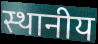
स्थानीय